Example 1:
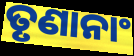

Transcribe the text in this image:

ତୃଣାନାଂ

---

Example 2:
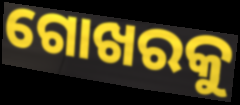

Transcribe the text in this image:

ଗୋଖରକୁ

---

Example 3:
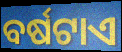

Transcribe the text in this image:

ବର୍ଷଟାଏ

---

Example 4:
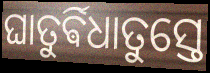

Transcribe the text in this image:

ଘାତୁର୍ଵିଧାତୁସ୍ତେ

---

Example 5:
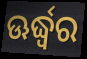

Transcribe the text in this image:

ଊର୍ଦ୍ଧ୍ଵର